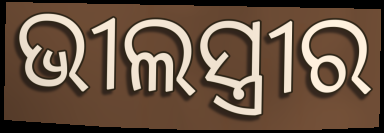
ଭୀଲସ୍ତ୍ରୀର